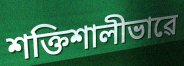
শক্তিশালীভাৱে